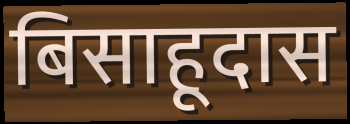
बिसाहूदास